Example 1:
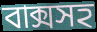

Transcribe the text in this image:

বাক্সসহ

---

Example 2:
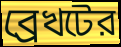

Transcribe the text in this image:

ব্রেখটের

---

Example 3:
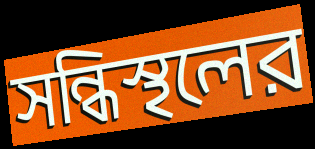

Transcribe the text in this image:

সন্ধিস্থলের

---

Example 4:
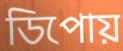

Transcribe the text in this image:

ডিপোয়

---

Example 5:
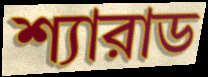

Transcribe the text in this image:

শ্যারাড